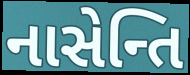
નાસેન્તિ